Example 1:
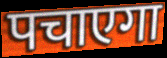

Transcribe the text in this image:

पचाएगा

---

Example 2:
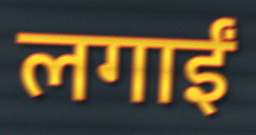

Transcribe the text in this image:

लगाईं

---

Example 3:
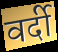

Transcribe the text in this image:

वर्दी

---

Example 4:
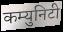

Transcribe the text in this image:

कम्युनिटी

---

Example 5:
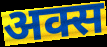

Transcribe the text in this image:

अक्स